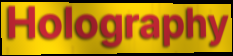
Holography